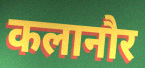
कलानौर